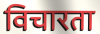
विचारता